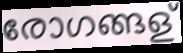
രോഗങ്ങള്